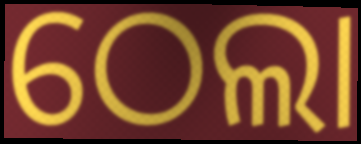
ଠେଲା